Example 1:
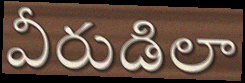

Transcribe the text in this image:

వీరుడిలా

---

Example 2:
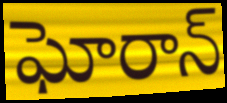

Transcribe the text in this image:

ఘోరాన్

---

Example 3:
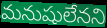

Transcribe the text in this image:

మనుషులేనని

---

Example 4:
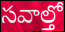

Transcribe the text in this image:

సవాల్తో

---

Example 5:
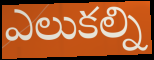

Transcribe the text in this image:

ఎలుకల్ని